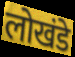
लोखंडे